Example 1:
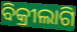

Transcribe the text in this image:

ବିକ୍ରୀଲାଗି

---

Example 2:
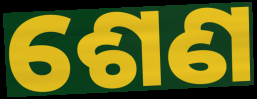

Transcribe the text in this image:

ଶେଣ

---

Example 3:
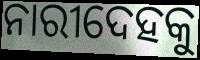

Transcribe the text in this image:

ନାରୀଦେହକୁ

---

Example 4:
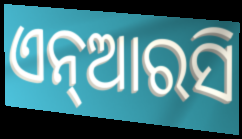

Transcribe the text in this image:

ଏନ୍ଆରସି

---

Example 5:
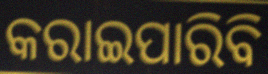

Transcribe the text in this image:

କରାଇପାରିବି